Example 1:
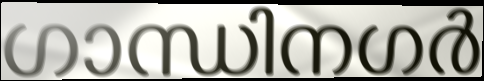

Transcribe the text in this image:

ഗാന്ധിനഗർ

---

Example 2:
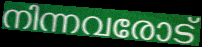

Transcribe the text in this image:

നിന്നവരോട്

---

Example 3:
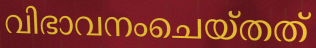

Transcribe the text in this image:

വിഭാവനംചെയ്തത്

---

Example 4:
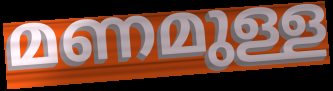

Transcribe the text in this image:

മണമുള്ള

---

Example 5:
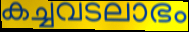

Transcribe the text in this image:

കച്ചവടലാഭം